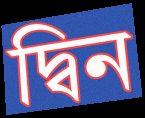
দ্বিন